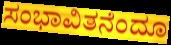
ಸಂಭಾವಿತನೆಂದೂ